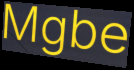
Mgbe